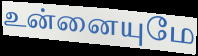
உன்னையுமே